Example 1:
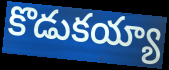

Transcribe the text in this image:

కొడుకయ్యా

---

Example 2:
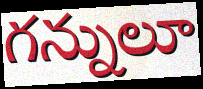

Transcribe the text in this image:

గన్నులూ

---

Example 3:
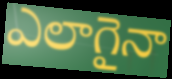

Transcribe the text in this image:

ఎలాగైనా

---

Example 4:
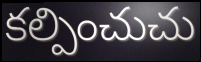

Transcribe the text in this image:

కల్పించుచు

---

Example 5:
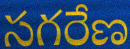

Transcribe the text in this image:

సగరేణ